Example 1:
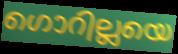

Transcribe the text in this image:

ഗൊറില്ലയെ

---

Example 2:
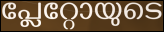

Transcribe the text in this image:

പ്ലേറ്റോയുടെ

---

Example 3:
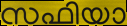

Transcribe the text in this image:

സഫിയാ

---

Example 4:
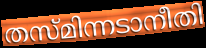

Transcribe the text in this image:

തസ്മിന്നടാനീതി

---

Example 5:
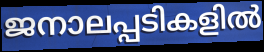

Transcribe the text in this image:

ജനാലപ്പടികളിൽ